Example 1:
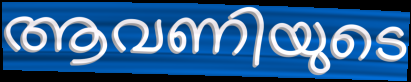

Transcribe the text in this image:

ആവണിയുടെ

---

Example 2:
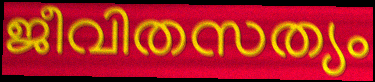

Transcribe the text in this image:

ജീവിതസത്യം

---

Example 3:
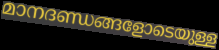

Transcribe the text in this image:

മാനദണ്ഡങ്ങളോടെയുള്ള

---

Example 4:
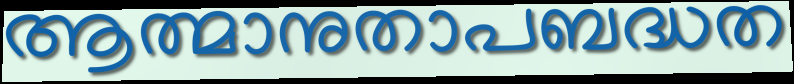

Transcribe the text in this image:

ആത്മാനുതാപബദ്ധത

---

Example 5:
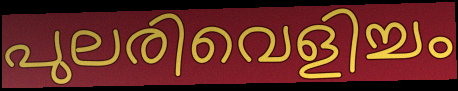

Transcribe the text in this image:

പുലരിവെളിച്ചം